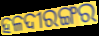
ହଳଦୀରଙ୍ଗର